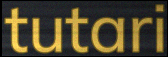
tutari